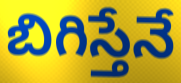
బిగిస్తేనే